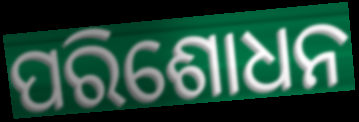
ପରିଶୋଧନ